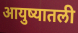
आयुष्यातली